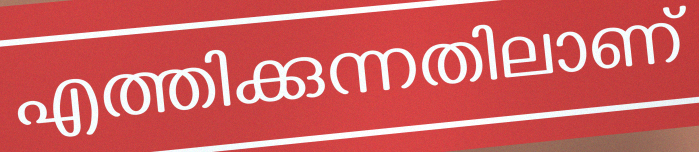
എത്തിക്കുന്നതിലാണ്